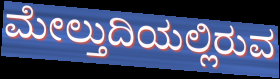
ಮೇಲ್ತುದಿಯಲ್ಲಿರುವ